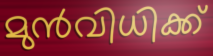
മുൻവിധിക്ക്